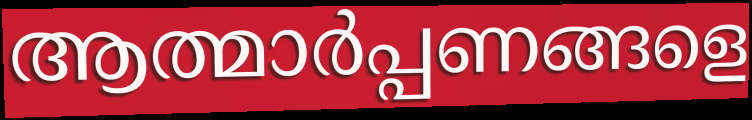
ആത്മാർപ്പണങ്ങളെ